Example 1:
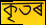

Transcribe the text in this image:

কৃতৰ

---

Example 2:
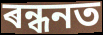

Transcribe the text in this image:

ৰন্ধনত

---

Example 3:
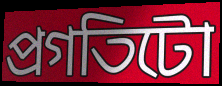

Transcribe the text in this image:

প্ৰগতিটো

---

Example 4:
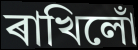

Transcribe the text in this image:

ৰাখিলোঁ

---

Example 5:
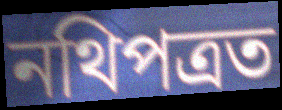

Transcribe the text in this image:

নথিপত্ৰত